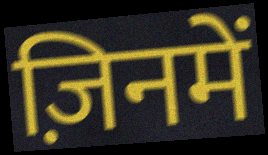
ज़िनमें